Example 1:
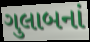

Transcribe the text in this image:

ગુલાબનાં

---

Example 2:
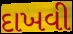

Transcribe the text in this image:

દાખવી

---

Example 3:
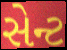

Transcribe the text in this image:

સેન્ટ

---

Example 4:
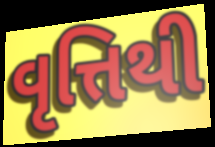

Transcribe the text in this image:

વૃત્તિથી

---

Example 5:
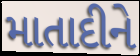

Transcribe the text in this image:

માતાદીને